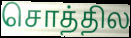
சொத்தில